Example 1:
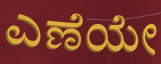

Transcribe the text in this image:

ಎಣೆಯೇ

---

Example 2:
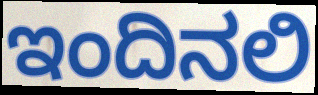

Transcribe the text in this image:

ಇಂದಿನಲಿ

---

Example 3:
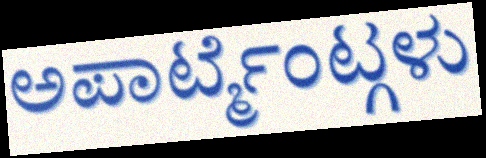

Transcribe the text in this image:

ಅಪಾರ್ಟ್ಮೆಂಟ್ಗಳು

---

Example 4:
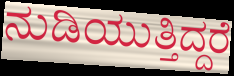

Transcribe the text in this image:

ನುಡಿಯುತ್ತಿದ್ದರೆ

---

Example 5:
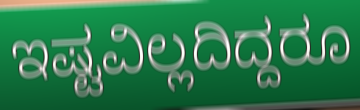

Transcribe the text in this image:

ಇಷ್ಟವಿಲ್ಲದಿದ್ದರೂ